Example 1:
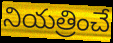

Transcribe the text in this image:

నియత్రించే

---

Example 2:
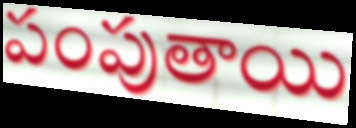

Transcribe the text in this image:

పంపుతాయి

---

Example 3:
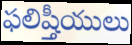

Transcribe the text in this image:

ఫలిష్తీయులు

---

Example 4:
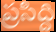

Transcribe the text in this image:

ప్రసిద్ది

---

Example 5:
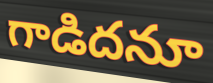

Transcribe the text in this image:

గాడిదనూ